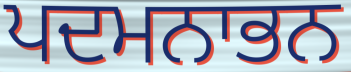
ਪਦਮਨਾਭਨ